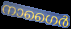
നാഗൈർ